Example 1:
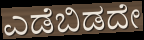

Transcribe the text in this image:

ಎಡೆಬಿಡದೇ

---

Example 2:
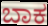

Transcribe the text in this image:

ಬಾಕ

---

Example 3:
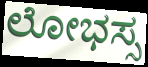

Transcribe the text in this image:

ಲೋಭಸ್ಸ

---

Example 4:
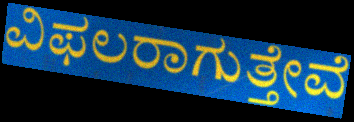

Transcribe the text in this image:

ವಿಫಲರಾಗುತ್ತೇವೆ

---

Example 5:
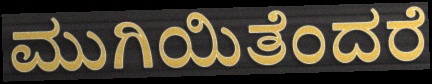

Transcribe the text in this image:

ಮುಗಿಯಿತೆಂದರೆ